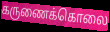
கருணைக்கொலை